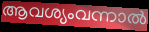
ആവശ്യംവന്നാൽ